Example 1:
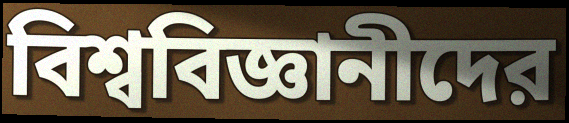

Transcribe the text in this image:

বিশ্ববিজ্ঞানীদের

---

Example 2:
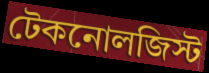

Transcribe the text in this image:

টেকনোলজিস্ট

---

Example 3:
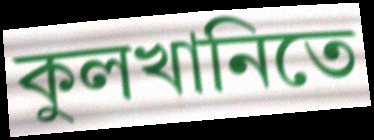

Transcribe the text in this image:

কুলখানিতে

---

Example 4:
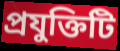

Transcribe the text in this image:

প্রযুক্তিটি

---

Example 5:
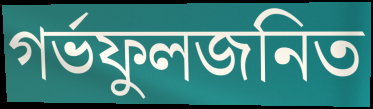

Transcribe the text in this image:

গর্ভফুলজনিত